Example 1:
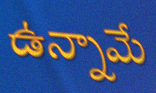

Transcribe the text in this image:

ఉన్నామే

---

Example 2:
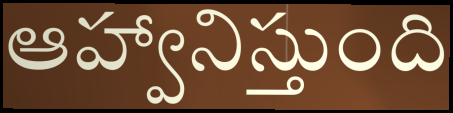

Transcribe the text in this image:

ఆహ్వానిస్తుంది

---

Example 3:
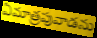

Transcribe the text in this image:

ఏమాత్రపువాడను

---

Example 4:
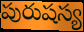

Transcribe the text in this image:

పురుషస్య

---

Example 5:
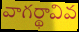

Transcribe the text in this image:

వాగర్థావివ